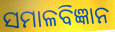
ସମାଳବିଜ୍ଞାନ